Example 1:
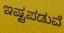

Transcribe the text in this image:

ಇಷ್ಟಪಡುವೆ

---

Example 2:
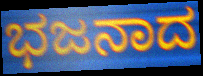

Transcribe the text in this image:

ಭಜನಾದ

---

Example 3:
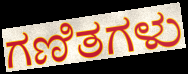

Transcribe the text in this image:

ಗಣಿತಗಳು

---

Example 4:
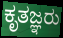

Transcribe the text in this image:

ಕೃತಜ್ಞರು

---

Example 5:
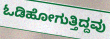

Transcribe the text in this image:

ಓಡಿಹೋಗುತ್ತಿದ್ದವು